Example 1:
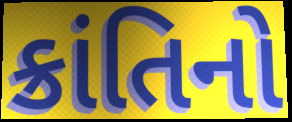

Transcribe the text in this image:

ક્રાંતિનો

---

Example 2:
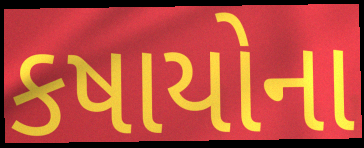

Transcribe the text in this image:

કષાયોના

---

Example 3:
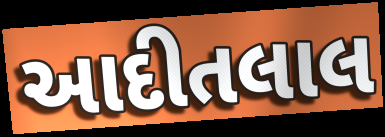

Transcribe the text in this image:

આદીતલાલ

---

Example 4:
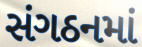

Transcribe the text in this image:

સંગઠનમાં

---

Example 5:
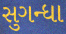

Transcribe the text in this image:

સુગન્ધા